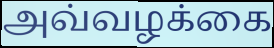
அவ்வழக்கை